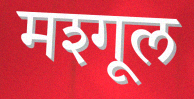
मश्गूल